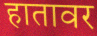
हातावर